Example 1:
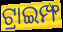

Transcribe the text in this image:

ଟ୍ରାଇମ୍ଫ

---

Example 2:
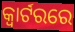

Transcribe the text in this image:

କ୍ୱାର୍ଟରରେ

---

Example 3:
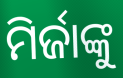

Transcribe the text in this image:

ମିର୍ଜାଙ୍କୁ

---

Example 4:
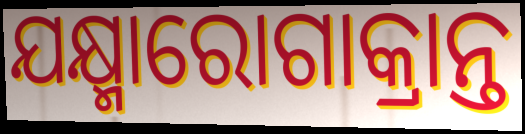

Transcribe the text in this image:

ଯକ୍ଷ୍ମାରୋଗାକ୍ରାନ୍ତ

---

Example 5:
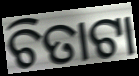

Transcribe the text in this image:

ଚିତାଟା